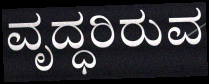
ವೃದ್ಧರಿರುವ